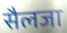
सैलजा